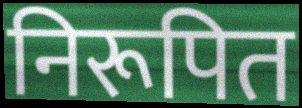
निरूपित